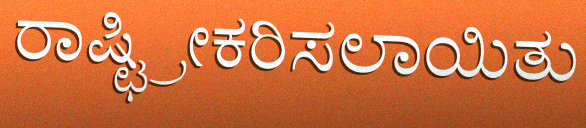
ರಾಷ್ಟ್ರೀಕರಿಸಲಾಯಿತು